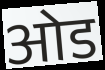
ओड